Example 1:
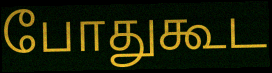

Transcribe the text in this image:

போதுகூட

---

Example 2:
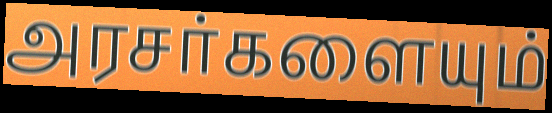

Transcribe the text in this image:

அரசர்களையும்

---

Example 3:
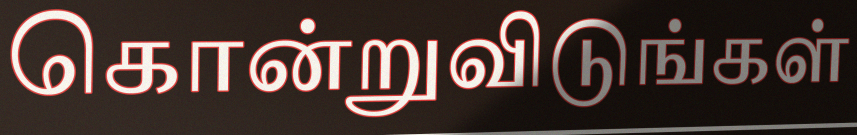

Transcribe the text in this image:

கொன்றுவிடுங்கள்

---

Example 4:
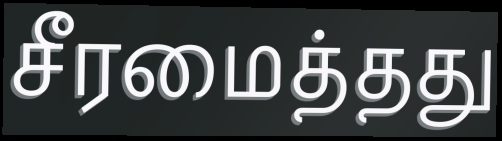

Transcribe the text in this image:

சீரமைத்தது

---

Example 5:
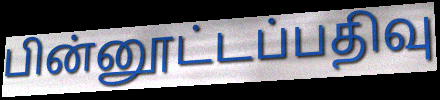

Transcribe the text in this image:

பின்னூட்டப்பதிவு